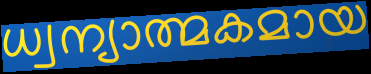
ധ്വന്യാത്മകമായ